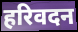
हरिवदन